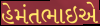
હેમંતભાઇએ